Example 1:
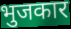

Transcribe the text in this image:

भुजकार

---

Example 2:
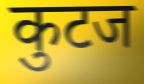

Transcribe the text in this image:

कुटज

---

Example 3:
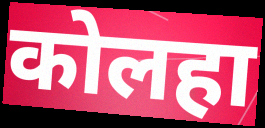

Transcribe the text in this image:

कोलहा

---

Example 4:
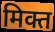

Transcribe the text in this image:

मिक्त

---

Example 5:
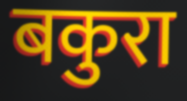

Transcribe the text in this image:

बकुरा